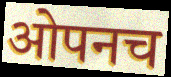
ओपनच